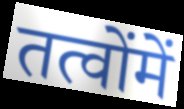
तत्वोंमें